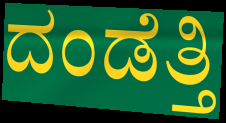
ದಂಡೆತ್ತಿ